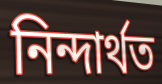
নিন্দাৰ্থত